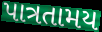
પાત્રતામય